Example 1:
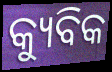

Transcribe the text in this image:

କ୍ୟୁବିକ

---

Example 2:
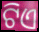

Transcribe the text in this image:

ଟିଏ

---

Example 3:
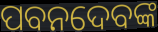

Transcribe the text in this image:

ପବନଦେବଙ୍କ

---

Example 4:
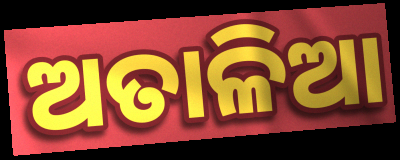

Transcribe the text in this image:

ଅତାଳିଆ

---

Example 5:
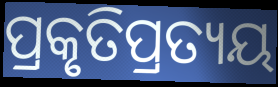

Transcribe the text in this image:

ପ୍ରକୃତିପ୍ରତ୍ୟୟ